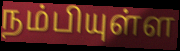
நம்பியுள்ள